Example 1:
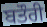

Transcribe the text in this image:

ਬਤੌਰੀ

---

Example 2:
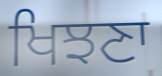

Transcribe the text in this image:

ਖਿਝਣਾ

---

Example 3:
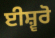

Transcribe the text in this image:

ਈਸ਼੍ਵਰੋ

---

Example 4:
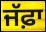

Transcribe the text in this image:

ਜੱਫ਼ਾ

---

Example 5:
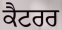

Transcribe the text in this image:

ਕੈਟਰਰ